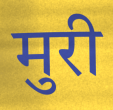
मुरी